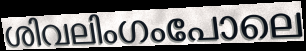
ശിവലിംഗംപോലെ